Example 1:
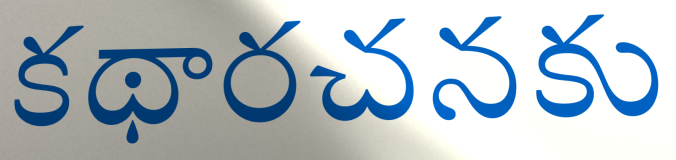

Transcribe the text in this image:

కథారచనకు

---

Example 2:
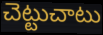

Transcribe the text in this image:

చెట్టుచాటు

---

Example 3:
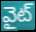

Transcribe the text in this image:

వైట్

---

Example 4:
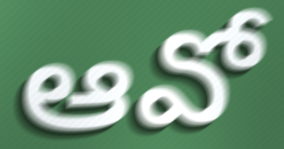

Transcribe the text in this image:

ఆవో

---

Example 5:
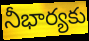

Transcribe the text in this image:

నీభార్యకు